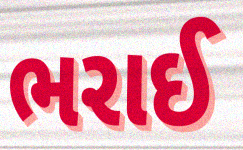
ભરાઈ